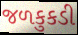
જળકુકડી